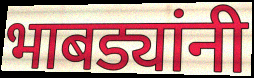
भाबड्यांनी